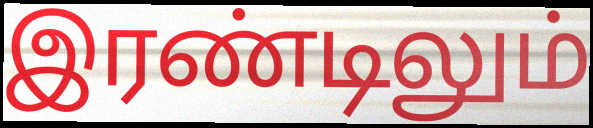
இரண்டிலும்